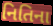
નિતિના